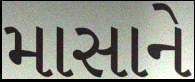
માસાને